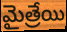
మైత్రేయి